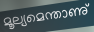
മൂല്യമെന്താണു്